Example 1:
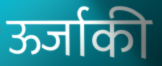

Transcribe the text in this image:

ऊर्जाकी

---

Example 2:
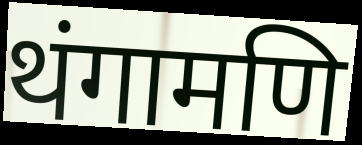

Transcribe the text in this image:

थंगामणि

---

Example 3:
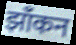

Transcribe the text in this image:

झाँकन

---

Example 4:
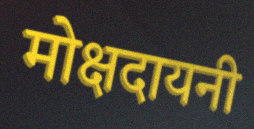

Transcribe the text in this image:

मोक्षदायनी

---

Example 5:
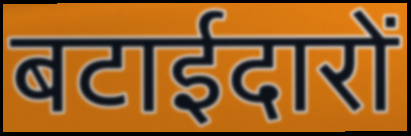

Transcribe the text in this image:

बटाईदारों